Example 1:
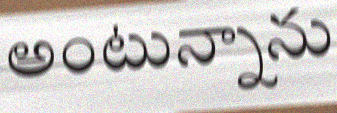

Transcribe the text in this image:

అంటున్నాను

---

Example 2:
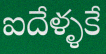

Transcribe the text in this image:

ఐదేళ్ళకే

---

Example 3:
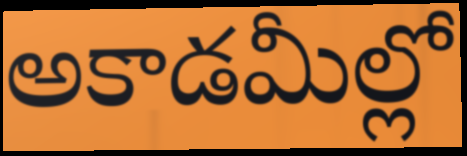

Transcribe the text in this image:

అకాడమీల్లో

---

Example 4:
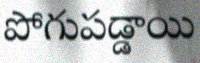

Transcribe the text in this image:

పోగుపడ్డాయి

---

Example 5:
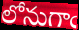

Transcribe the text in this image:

లోనుగాఁ